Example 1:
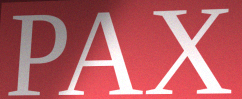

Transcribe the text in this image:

PAX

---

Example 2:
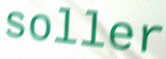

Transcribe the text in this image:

soller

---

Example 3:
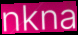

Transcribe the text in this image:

nkna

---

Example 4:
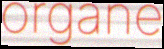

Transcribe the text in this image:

organe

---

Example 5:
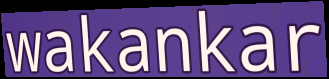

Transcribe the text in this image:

wakankar